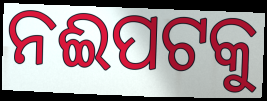
ନଈପଟକୁ